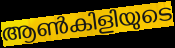
ആൺകിളിയുടെ